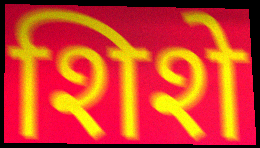
शिशे